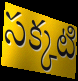
సక్కటి